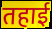
तहाई